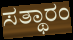
ಸತ್ಥಾರಂ